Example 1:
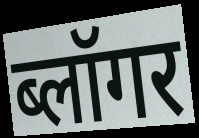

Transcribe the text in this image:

ब्लॉगर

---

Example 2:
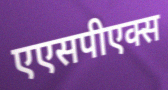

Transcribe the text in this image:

एएसपीएक्स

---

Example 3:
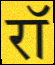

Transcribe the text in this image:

रॉ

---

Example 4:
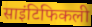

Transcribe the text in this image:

साइंटिफिकली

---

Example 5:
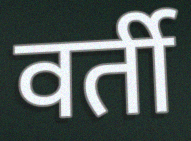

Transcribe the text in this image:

वर्ती